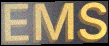
EMS